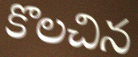
కొలచిన